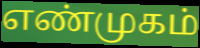
எண்முகம்